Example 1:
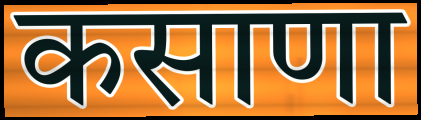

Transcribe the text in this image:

कसाणा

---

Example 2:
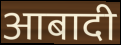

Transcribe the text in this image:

आबादी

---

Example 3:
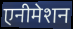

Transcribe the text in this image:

एनीमेशन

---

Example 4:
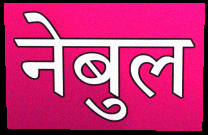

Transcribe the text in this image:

नेबुल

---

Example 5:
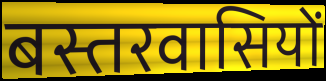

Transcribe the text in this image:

बस्तरवासियों